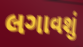
લગાવશું